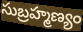
సుబ్రహ్మణ్యం